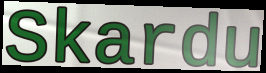
Skardu